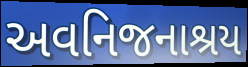
અવનિજનાશ્રય